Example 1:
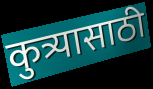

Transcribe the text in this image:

कुत्र्यासाठी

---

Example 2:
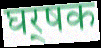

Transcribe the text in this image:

घर्षक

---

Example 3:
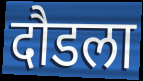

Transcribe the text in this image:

दौडला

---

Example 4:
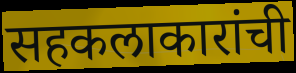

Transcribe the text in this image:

सहकलाकारांची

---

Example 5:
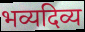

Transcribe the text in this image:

भव्यदिव्य